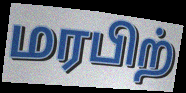
மரபிற்